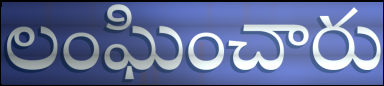
లంఘించారు